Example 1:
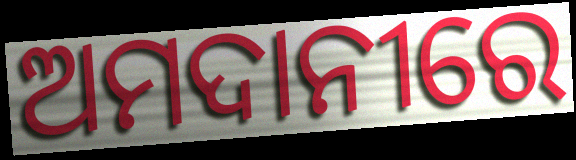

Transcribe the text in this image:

ଅମଦାନୀରେ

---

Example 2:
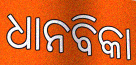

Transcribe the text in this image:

ଧାନବିକା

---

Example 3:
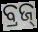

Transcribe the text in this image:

ବ୍ରଜ୍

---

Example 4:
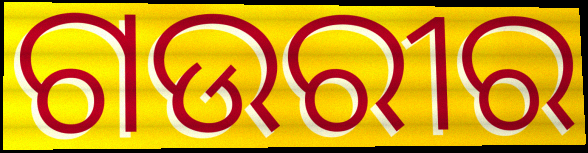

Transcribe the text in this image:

ଗଉରୀର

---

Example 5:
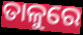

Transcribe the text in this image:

ତାଳୁରେ